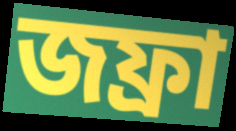
জফ্রা